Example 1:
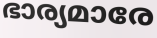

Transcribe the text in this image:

ഭാര്യമാരേ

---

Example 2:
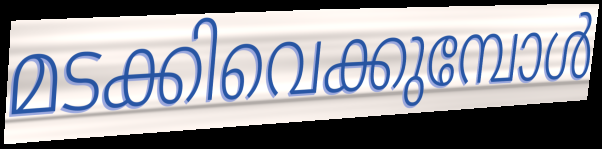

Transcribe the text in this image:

മടക്കിവെക്കുമ്പോൾ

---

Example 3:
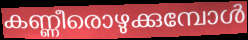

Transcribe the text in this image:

കണ്ണീരൊഴുക്കുമ്പോൾ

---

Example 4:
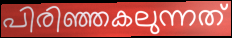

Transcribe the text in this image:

പിരിഞ്ഞകലുന്നത്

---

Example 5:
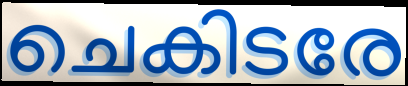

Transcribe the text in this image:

ചെകിടരേ